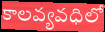
కాలవ్యవధిలో